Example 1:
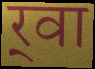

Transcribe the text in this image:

र्वा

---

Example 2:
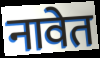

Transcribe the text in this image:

नावेत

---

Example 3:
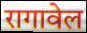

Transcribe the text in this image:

रागावेल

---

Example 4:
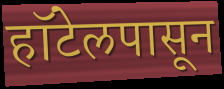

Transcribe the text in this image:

हॉटेलपासून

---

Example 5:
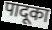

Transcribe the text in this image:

पादूका